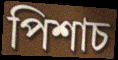
পিশাচ